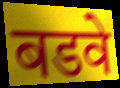
बडवे